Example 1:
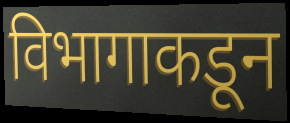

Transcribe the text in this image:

विभागाकडून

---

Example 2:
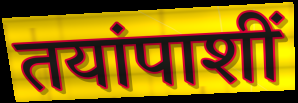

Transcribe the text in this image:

तयांपाशीं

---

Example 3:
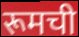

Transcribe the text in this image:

रूमची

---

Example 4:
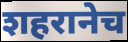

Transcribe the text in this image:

शहरानेच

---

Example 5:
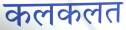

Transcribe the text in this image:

कलकलत